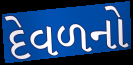
દેવળનો